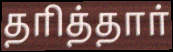
தரித்தார்